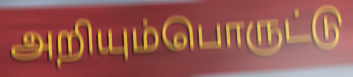
அறியும்பொருட்டு